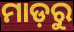
ମାଡ଼ରୁ